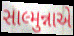
સાલ્મુન્નાએ